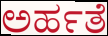
ಅರ್ಹತೆ